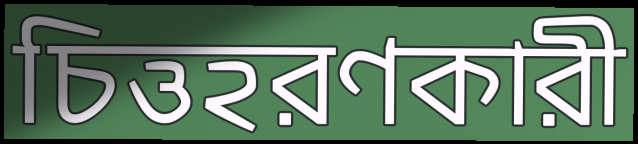
চিত্তহরণকারী